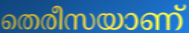
തെരീസയാണ്